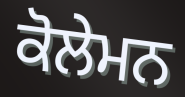
ਕੋਲੇਮਨ